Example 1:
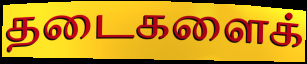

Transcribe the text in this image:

தடைகளைக்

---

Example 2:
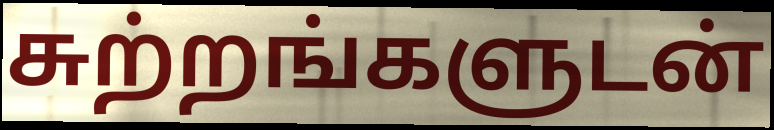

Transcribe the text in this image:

சுற்றங்களுடன்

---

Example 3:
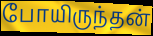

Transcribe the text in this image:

போயிருந்தன்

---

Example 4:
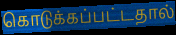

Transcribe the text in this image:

கொடுக்கப்பட்டதால்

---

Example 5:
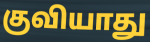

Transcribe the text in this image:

குவியாது